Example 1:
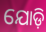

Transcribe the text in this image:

ଯୋଡ଼ି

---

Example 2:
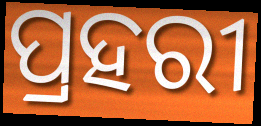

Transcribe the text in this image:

ପ୍ରହରୀ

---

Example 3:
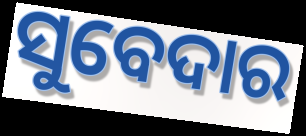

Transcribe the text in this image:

ସୁବେଦାର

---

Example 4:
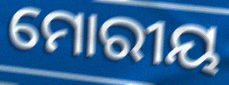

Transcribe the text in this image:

ମୋରୀୟ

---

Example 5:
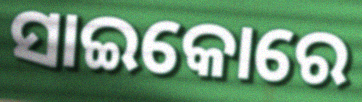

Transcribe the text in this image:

ସାଇକୋରେ